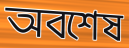
অবশেষ